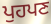
ਪੁਹਪਣ